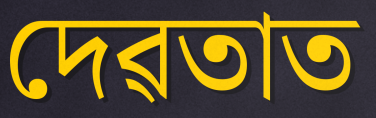
দেৱতাত